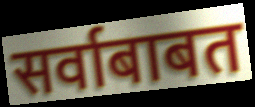
सर्वाबाबत